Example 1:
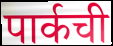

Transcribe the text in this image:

पार्कची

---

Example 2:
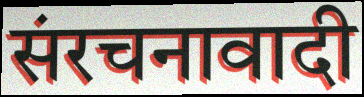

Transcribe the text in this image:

संरचनावादी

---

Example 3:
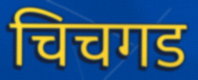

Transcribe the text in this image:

चिचगड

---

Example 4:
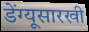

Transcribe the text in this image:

डेंग्यूसारखी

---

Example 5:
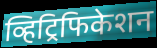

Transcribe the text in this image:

व्हिट्रिफिकेशन